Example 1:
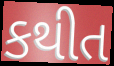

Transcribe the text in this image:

કથીત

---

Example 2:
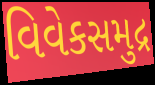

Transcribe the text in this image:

વિવેકસમુદ્ર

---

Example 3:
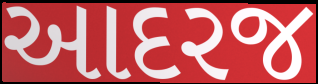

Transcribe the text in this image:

આદરજ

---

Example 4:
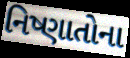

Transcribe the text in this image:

નિષ્ણાતોના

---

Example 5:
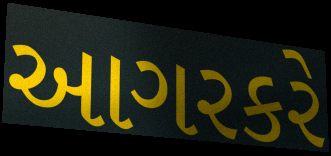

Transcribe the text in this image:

આગરકરે